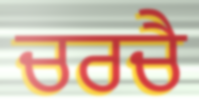
ਚਰਚੈ